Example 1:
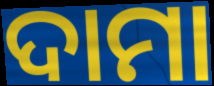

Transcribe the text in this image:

ଦାମା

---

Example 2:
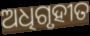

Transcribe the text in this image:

ଅଧିଗୃହୀତ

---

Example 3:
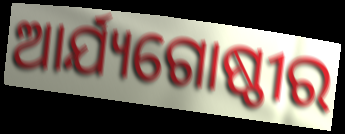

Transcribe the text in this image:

ଆର୍ଯ୍ୟଗୋଷ୍ଠୀର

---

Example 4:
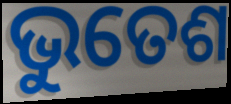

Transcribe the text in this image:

ଭୁତେଶ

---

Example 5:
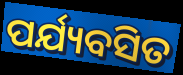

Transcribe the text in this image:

ପର୍ଯ୍ୟବସିତ